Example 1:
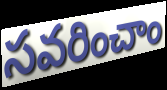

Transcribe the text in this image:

సవరించాం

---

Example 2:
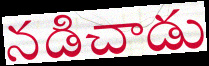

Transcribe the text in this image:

నడిచాడు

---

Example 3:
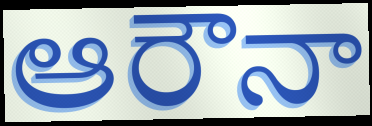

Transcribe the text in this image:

ఆరౌనా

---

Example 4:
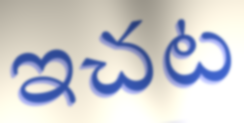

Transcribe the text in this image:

ఇచట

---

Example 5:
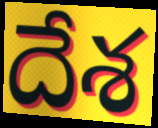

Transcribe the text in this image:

దేశ